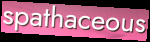
spathaceous